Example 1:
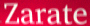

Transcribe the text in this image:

Zarate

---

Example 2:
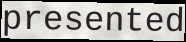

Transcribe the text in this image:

presented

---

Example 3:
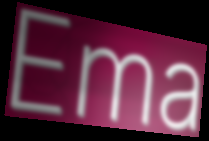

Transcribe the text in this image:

Ema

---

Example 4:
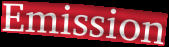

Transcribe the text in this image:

Emission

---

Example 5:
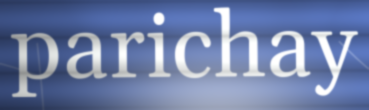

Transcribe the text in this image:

parichay